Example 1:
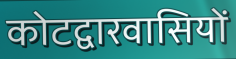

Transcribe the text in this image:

कोटद्वारवासियों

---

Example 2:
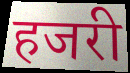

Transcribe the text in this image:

हजरी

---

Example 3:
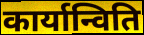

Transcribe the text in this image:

कार्यान्विति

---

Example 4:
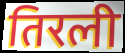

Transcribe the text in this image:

तिरली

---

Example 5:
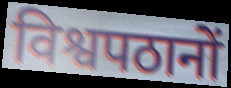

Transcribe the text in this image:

विश्वपठानों